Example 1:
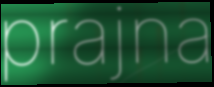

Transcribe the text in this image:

prajna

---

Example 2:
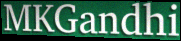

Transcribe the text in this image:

MKGandhi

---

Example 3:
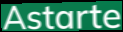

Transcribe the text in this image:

Astarte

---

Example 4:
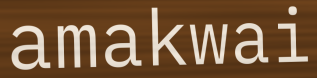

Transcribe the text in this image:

amakwai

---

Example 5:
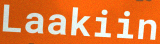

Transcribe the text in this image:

Laakiin